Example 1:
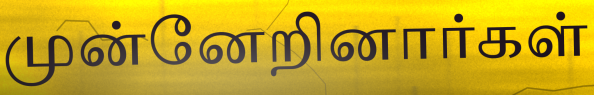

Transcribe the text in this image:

முன்னேறினார்கள்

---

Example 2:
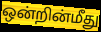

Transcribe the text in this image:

ஒன்றின்மீது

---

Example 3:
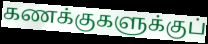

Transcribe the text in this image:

கணக்குகளுக்குப்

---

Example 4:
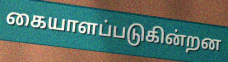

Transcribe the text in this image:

கையாளப்படுகின்றன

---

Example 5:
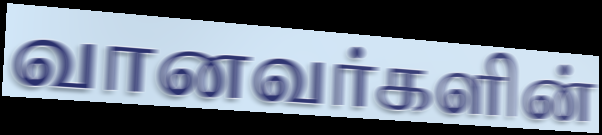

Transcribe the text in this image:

வானவர்களின்